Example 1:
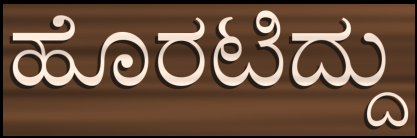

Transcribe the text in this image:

ಹೊರಟಿದ್ದು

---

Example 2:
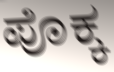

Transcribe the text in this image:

ಪೊಕ್ಕ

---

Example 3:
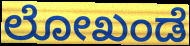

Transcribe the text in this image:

ಲೋಖಂಡೆ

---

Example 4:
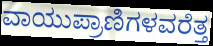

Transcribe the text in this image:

ವಾಯುಪ್ರಾಣಿಗಳವರೆತ್ತ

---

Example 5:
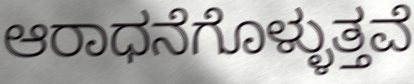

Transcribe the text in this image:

ಆರಾಧನೆಗೊಳ್ಳುತ್ತವೆ